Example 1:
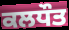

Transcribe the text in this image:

ਕਲਧੌਤ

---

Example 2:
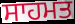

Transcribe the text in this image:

ਸਾਹਮਤ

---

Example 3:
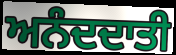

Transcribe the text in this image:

ਅਨੰਦਦਾਤੀ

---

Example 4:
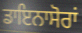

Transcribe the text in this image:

ਡਾਇਨਾਸੋਰਾਂ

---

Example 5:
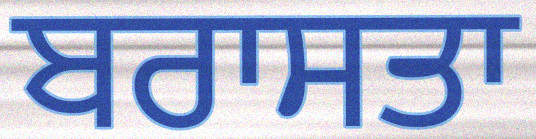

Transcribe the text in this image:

ਬਰਾਸਤਾ